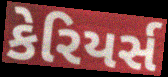
કેરિયર્સ